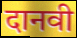
दानवी